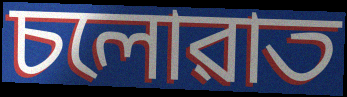
চলোৱাত